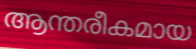
ആന്തരീകമായ